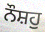
ਨੌਸ਼ਹੁ